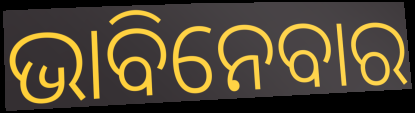
ଭାବିନେବାର